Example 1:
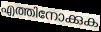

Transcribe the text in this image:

എത്തിനോക്കുക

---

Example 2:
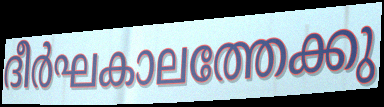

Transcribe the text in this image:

ദീർഘകാലത്തേക്കു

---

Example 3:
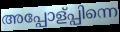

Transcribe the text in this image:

അപ്പോള്പ്പിന്നെ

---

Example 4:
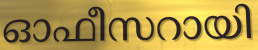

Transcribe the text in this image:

ഓഫീസറായി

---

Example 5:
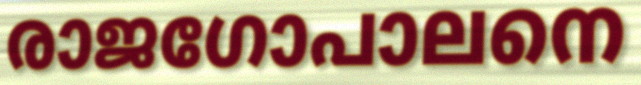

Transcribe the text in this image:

രാജഗോപാലനെ